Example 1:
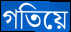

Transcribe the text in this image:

গতিয়ে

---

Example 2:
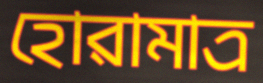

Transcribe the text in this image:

হোৱামাত্ৰ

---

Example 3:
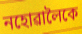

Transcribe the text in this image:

নহোৱালৈকে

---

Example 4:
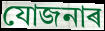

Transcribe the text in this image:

যোজনাৰ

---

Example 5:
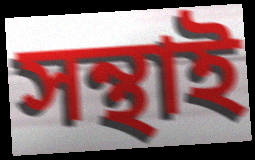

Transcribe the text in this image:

সন্থাই